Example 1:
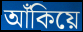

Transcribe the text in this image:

আঁকিয়ে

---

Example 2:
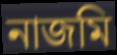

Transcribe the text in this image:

নাজমি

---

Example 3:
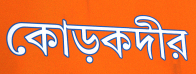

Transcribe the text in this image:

কোড়কদীর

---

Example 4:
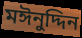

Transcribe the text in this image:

মঈনুদ্দিন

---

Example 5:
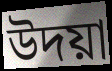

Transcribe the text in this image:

উদয়া